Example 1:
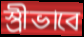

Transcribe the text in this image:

স্ত্রীভাবে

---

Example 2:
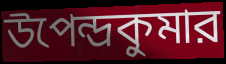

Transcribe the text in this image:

উপেন্দ্রকুমার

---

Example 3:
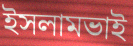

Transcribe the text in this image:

ইসলামভাই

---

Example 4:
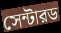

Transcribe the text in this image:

সেন্টারড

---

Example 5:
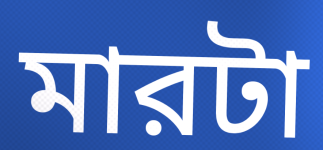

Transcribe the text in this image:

মারটা